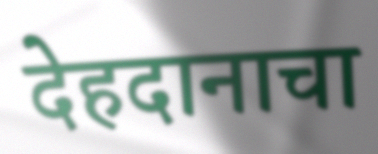
देहदानाचा